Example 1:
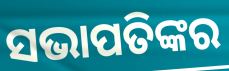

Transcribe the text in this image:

ସଭାପତିଙ୍କର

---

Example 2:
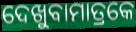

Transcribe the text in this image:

ଦେଖୁବାମାତ୍ରକେ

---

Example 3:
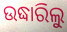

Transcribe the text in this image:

ଉଦ୍ଧାରିଲୁ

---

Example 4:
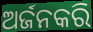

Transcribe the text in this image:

ଅର୍ଜନକରି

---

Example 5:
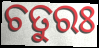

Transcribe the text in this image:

ଚତୁରଃ